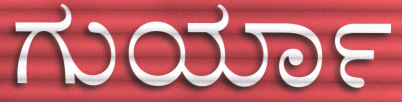
ಗುರ್ಯಾ